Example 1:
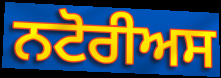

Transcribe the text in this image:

ਨਟੋਰੀਅਸ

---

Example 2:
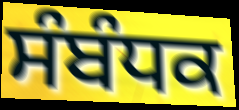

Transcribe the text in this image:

ਸੰਬੰਧਕ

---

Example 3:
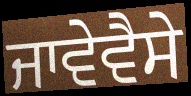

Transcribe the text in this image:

ਜਾਵੇਵੈਸੇ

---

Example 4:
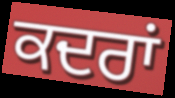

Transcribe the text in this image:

ਕਦਰਾਂ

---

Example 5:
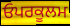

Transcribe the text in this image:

ਓਪਰਕੂਲਮ